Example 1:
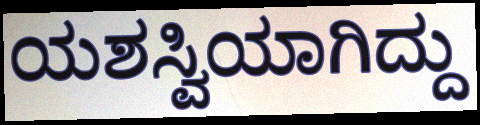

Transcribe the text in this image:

ಯಶಸ್ವಿಯಾಗಿದ್ದು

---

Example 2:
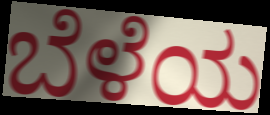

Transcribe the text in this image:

ಬೆಳೆಯ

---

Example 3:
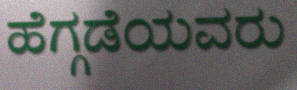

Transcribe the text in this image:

ಹೆಗ್ಗಡೆಯವರು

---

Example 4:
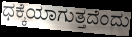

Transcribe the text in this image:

ಧಕ್ಕೆಯಾಗುತ್ತದೆಂದು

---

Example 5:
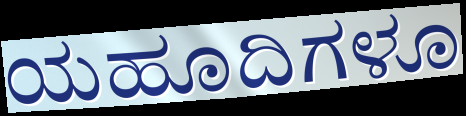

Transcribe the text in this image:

ಯಹೂದಿಗಳೂ